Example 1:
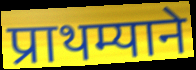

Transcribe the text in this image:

प्राथम्याने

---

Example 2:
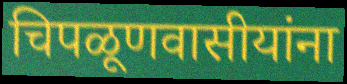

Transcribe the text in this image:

चिपळूणवासीयांना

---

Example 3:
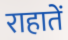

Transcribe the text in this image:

राहातें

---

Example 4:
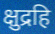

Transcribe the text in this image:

क्षुद्रहि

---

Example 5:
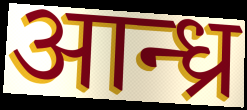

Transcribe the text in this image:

आन्ध्र